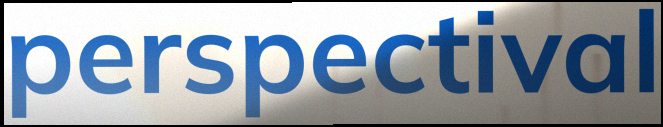
perspectival